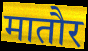
मातौर